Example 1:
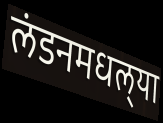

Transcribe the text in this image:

लंडनमधल्या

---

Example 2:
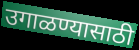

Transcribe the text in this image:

उगाळण्यासाठी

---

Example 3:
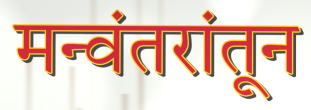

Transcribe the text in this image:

मन्वंतरांतून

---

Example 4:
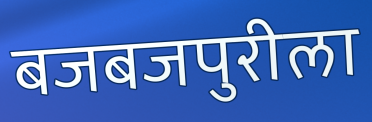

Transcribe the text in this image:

बजबजपुरीला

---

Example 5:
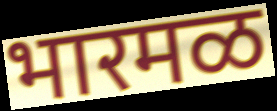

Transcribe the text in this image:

भारमळ